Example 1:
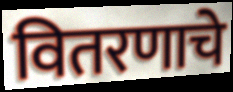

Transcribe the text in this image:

वितरणाचे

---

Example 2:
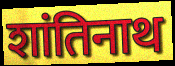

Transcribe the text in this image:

शांतिनाथ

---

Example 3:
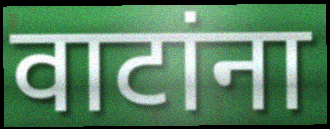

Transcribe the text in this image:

वाटांना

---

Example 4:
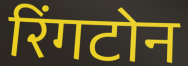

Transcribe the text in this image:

रिंगटोन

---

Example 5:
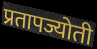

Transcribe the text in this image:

प्रतापज्योती